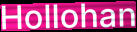
Hollohan